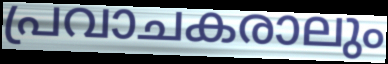
പ്രവാചകരാലും